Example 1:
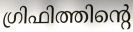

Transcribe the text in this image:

ഗ്രിഫിത്തിന്റെ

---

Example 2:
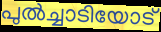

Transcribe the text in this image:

പുൽച്ചാടിയോട്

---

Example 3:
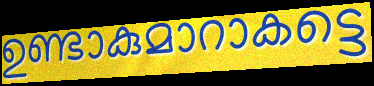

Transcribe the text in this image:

ഉണ്ടാകുമാറാകട്ടെ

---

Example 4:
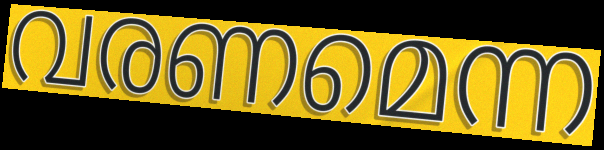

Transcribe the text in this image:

വരണമെന്ന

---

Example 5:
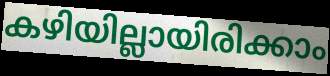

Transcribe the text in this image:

കഴിയില്ലായിരിക്കാം